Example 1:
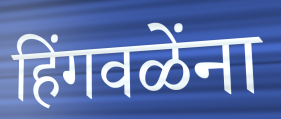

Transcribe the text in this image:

हिंगवळेंना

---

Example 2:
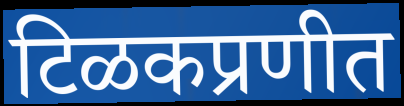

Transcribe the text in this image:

टिळकप्रणीत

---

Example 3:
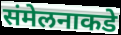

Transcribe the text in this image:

संमेलनाकडे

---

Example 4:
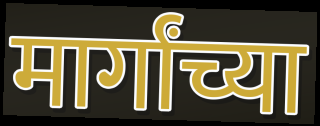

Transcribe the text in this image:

मार्गांच्या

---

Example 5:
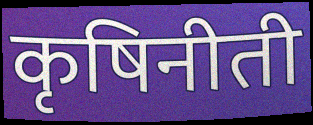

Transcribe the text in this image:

कृषिनीती